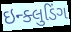
ઇન્ક્લુડિંગ